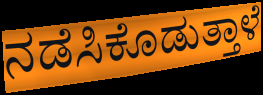
ನಡೆಸಿಕೊಡುತ್ತಾಳೆ